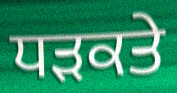
ਧੜਕਤੇ